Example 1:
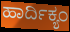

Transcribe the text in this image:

ಹಾರ್ದಿಕ್ಯಂ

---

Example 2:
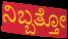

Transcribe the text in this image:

ನಿಬ್ಬತ್ತೋ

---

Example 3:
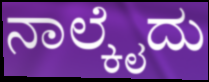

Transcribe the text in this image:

ನಾಲ್ಕೈದು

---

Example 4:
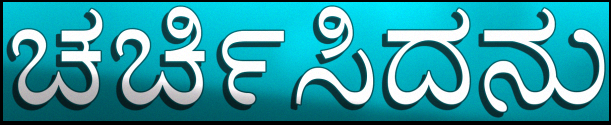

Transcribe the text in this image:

ಚರ್ಚಿಸಿದನು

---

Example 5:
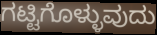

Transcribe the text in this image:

ಗಟ್ಟಿಗೊಳ್ಳುವುದು